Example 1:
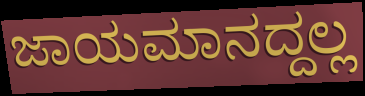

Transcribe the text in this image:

ಜಾಯಮಾನದ್ದಲ್ಲ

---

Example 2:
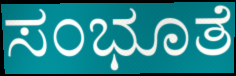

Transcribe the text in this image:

ಸಂಭೂತೆ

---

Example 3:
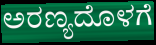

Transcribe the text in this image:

ಅರಣ್ಯದೊಳಗೆ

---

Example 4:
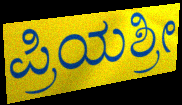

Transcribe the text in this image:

ಪ್ರಿಯಶ್ರೀ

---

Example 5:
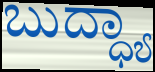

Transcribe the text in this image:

ಬುದ್ಧ್ಯಾ